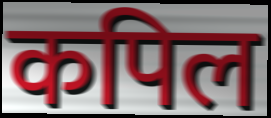
कपिल